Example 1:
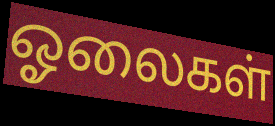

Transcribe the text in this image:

ஓலைகள்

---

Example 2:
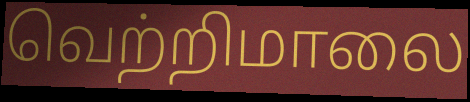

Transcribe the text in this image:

வெற்றிமாலை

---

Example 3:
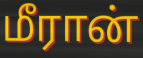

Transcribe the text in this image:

மீரான்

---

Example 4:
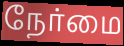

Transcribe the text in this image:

நேர்மை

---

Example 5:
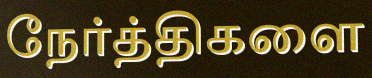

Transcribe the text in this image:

நேர்த்திகளை